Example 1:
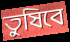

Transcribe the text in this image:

তুষিবে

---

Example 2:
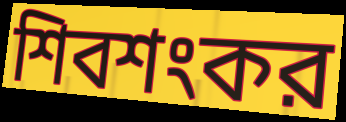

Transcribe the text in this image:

শিবশংকর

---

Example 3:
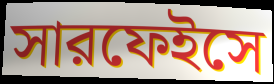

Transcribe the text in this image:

সারফেইসে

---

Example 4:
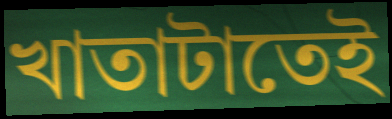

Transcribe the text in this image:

খাতাটাতেই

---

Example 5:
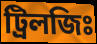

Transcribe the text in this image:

ট্রিলজিঃ